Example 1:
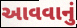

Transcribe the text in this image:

આવવાનું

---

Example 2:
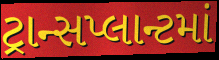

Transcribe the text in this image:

ટ્રાન્સપ્લાન્ટમાં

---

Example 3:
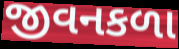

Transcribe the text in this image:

જીવનકળા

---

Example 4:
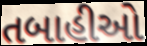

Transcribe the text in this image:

તબાહીઓ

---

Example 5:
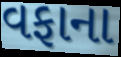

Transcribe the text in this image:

વફાના